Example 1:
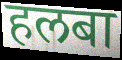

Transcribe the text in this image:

हलबा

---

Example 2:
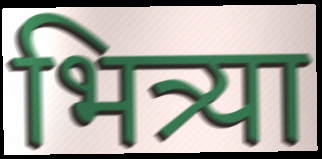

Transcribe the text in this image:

भित्र्या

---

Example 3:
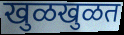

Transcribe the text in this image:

खुळखुळत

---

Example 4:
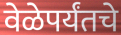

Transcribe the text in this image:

वेळेपर्यंतचे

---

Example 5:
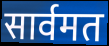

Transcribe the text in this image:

सार्वमत